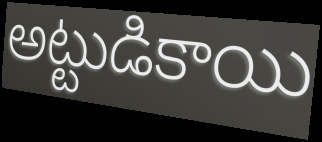
అట్టుడికాయి